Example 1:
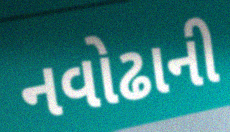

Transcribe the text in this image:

નવોઢાની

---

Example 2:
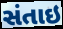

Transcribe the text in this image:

સંતાઇ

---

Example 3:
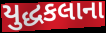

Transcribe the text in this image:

યુદ્ધકલાના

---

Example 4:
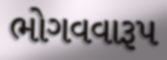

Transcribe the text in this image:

ભોગવવારૂપ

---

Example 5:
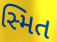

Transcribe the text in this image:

સ્મિત